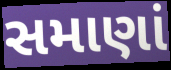
સમાણાં